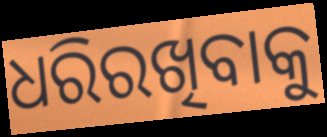
ଧରିରଖିବାକୁ